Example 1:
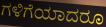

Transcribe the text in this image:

ಗಳಿಗೆಯಾದರೂ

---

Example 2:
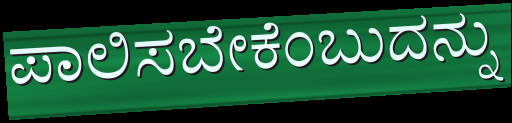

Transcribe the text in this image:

ಪಾಲಿಸಬೇಕೆಂಬುದನ್ನು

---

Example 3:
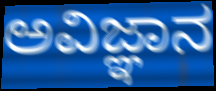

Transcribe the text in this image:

ಅವಿಜ್ಞಾನ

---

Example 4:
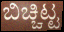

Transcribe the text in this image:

ಬಿಚ್ಚಿಟ್ಟ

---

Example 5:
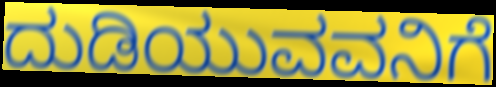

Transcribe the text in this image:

ದುಡಿಯುವವನಿಗೆ